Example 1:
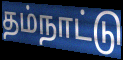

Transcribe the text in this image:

தம்நாட்டு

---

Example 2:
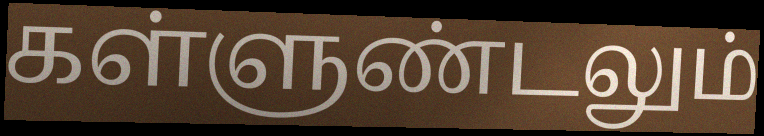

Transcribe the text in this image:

கள்ளுண்டலும்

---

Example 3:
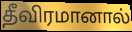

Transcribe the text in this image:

தீவிரமானால்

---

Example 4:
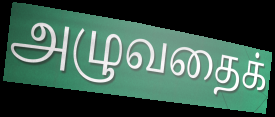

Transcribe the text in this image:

அழுவதைக்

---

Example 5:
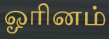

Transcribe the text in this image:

ஓரினம்